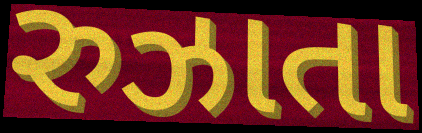
રુઝાતા